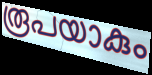
രൂപയാകും